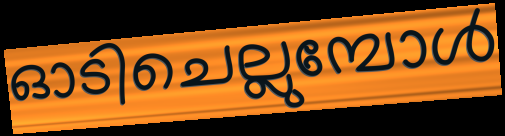
ഓടിചെല്ലുമ്പോൾ